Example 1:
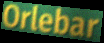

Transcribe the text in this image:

Orlebar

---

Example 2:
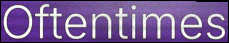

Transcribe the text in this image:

Oftentimes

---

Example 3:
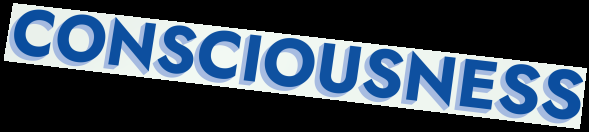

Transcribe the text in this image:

CONSCIOUSNESS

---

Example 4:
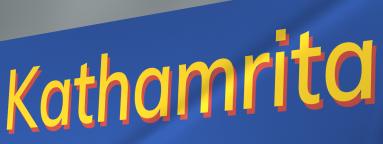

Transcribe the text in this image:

Kathamrita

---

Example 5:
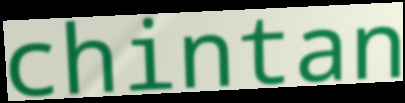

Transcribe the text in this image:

chintan